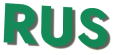
RUS